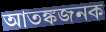
আতঙ্কজনক